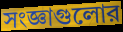
সংজ্ঞাগুলোর